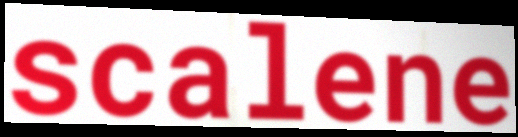
scalene